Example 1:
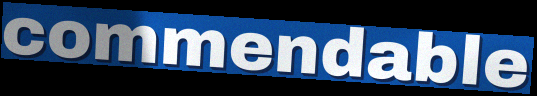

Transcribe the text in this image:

commendable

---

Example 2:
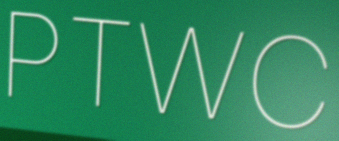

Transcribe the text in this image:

PTWC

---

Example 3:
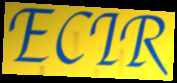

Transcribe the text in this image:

ECIR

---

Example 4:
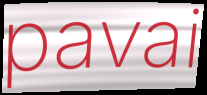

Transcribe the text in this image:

pavai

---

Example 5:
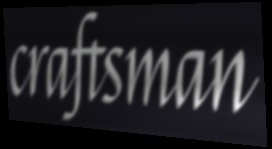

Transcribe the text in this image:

craftsman